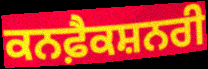
ਕਨਫ਼ੈਕਸ਼ਨਰੀ